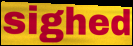
sighed